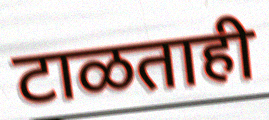
टाळताही